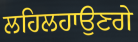
ਲਹਿਲਹਾਉਣਗੇ